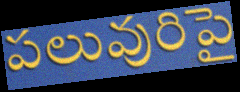
పలువురిపై